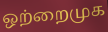
ஒற்றைமுக